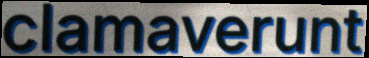
clamaverunt